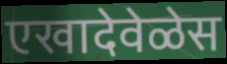
एखादेवेळेस